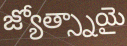
జ్యోత్స్నాయై